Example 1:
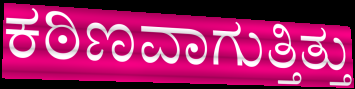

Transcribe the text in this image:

ಕಠಿಣವಾಗುತ್ತಿತ್ತು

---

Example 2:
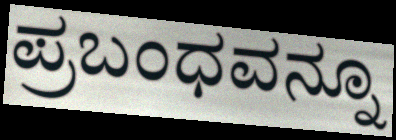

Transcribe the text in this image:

ಪ್ರಬಂಧವನ್ನೂ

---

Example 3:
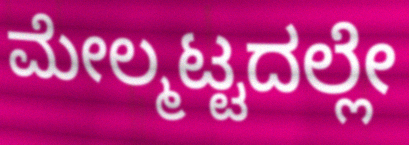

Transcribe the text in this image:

ಮೇಲ್ಮಟ್ಟದಲ್ಲೇ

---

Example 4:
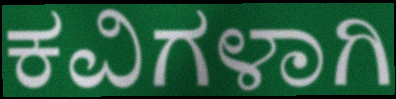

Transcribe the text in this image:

ಕವಿಗಳಾಗಿ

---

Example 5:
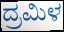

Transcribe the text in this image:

ದ್ರಮಿಳ